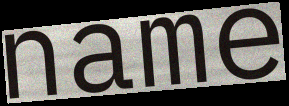
name